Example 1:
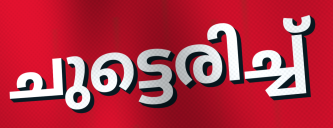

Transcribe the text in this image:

ചുട്ടെരിച്ച്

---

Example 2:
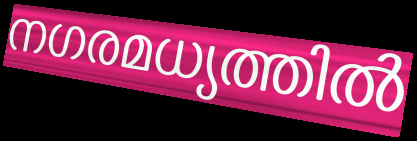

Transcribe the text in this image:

നഗരമധ്യത്തിൽ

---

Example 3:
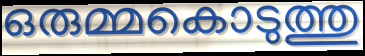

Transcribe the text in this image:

ഒരുമ്മകൊടുത്തു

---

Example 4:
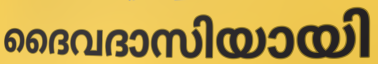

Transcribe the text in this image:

ദൈവദാസിയായി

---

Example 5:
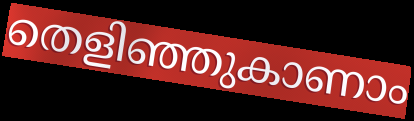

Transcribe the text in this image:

തെളിഞ്ഞുകാണാം